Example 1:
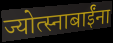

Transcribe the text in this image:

ज्योत्स्नाबाईंना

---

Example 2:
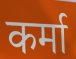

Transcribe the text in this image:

कर्मा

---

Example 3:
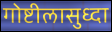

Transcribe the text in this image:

गोष्टीलासुध्दा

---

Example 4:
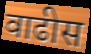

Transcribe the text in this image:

वाढीस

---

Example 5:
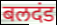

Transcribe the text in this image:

बलदंड